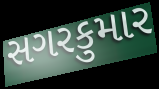
સગરકુમાર